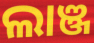
ଲାଞ୍ଜ